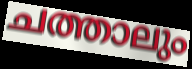
ചത്താലും